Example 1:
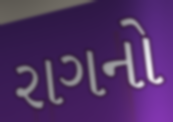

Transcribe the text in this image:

રાગનો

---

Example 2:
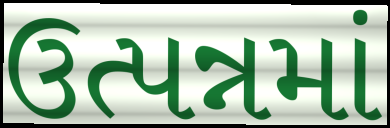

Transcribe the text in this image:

ઉત્પન્નમાં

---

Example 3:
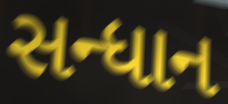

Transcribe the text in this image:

સન્ધાન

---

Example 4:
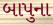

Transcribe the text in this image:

બાપુના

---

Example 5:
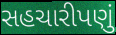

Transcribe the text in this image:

સહચારીપણું